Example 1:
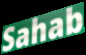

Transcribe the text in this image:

Sahab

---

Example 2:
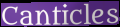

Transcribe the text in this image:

Canticles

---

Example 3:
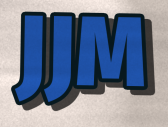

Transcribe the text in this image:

JJM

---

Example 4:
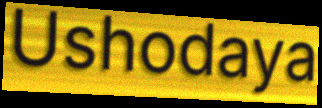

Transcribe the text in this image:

Ushodaya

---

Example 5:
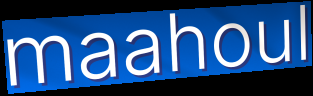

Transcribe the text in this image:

maahoul